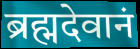
ब्रह्मदेवानं